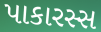
પાકારસ્સ